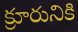
క్రూరునికి